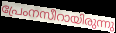
പ്രേംനസീറായിരുന്നു